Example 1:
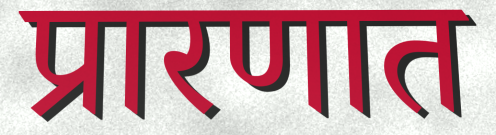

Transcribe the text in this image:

प्रारणात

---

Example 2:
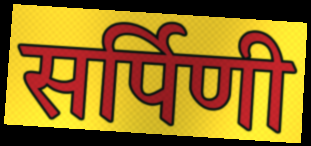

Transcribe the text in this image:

सर्पिणी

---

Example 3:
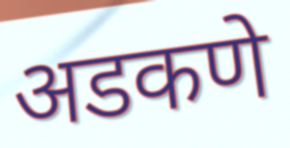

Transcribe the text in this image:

अडकणे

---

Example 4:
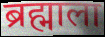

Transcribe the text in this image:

ब्रह्माला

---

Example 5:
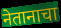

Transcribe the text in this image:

नेतानाचा